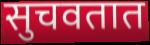
सुचवतात